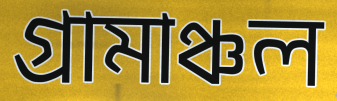
গ্রামাঞ্চল